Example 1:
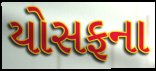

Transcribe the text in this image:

યોસફના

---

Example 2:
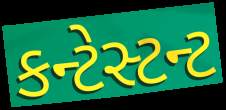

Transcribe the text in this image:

કન્ટેસ્ટન્ટ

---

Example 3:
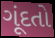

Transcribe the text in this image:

ગૂંદતો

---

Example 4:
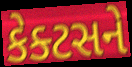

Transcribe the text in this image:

કેક્ટસને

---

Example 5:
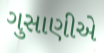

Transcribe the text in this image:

ગુસાણીએ